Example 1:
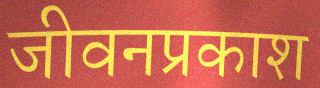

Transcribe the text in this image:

जीवनप्रकाश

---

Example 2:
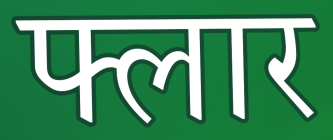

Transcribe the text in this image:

फ्लार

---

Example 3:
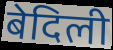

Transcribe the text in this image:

बेदिली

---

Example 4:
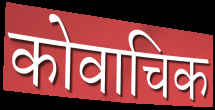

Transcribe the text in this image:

कोवाचिक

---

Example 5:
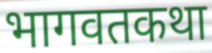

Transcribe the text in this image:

भागवतकथा